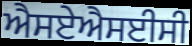
ਐਸਏਐਸਈਸੀ